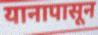
यानापासून